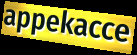
appekacce